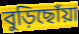
বুড়িছোঁয়া